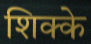
शिक्के